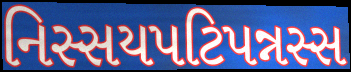
નિસ્સયપટિપન્નસ્સ